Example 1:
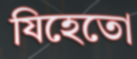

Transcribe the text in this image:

যিহেতো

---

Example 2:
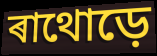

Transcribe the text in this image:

ৰাথোড়ে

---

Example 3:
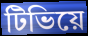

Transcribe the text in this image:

টিভিয়ে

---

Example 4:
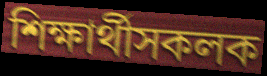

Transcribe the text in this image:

শিক্ষাৰ্থীসকলক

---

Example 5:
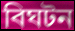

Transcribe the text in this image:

বিঘটন